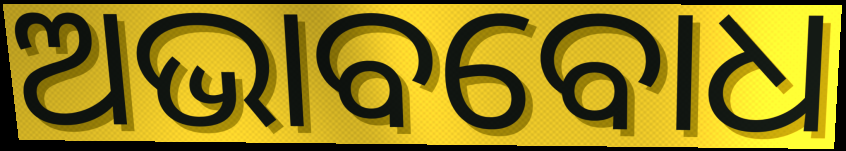
ଅଭାବବୋଧ